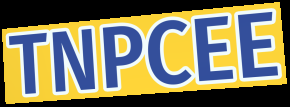
TNPCEE